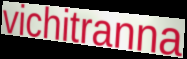
vichitranna